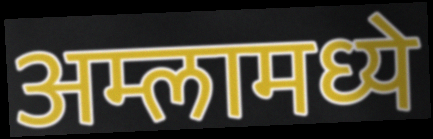
अम्लामध्ये